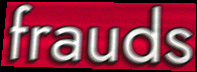
frauds